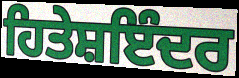
ਹਿਤੇਸ਼ਇੰਦਰ